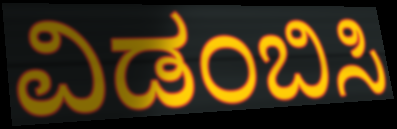
ವಿಡಂಬಿಸಿ